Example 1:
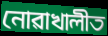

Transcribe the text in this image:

নোৱাখালীত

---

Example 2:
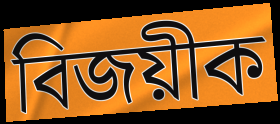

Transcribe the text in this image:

বিজয়ীক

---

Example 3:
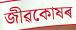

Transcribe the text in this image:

জীৱকোষৰ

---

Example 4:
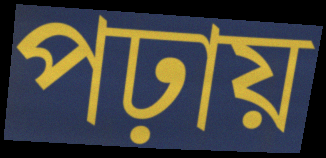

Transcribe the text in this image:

পঢ়ায়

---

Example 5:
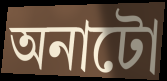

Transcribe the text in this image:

অনাটো